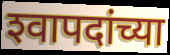
श्‍वापदांच्या